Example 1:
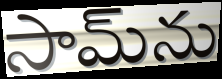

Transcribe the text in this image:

సామ్‌ను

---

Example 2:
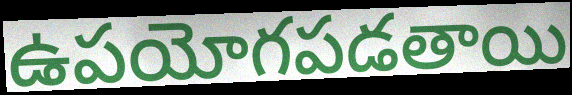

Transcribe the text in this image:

ఉపయోగపడతాయి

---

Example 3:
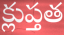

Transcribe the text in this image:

క్లుప్తత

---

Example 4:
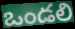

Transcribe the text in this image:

ఒండలి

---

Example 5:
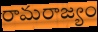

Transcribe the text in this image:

రామరాజ్యం